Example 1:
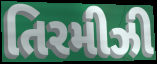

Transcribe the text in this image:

તિરમીઝી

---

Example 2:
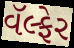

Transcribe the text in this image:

વૅલ્ફેર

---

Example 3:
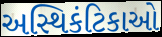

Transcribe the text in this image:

અસ્થિકંટિકાઓ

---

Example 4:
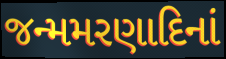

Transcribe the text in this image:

જન્મમરણાદિનાં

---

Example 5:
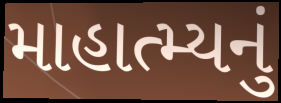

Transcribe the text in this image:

માહાત્મ્યનું